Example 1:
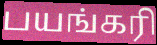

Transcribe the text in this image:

பயங்கரி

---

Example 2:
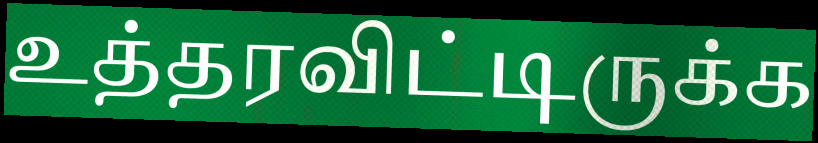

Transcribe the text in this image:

உத்தரவிட்டிருக்க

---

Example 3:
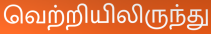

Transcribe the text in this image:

வெற்றியிலிருந்து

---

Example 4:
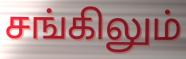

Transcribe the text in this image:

சங்கிலும்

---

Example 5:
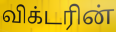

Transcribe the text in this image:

விக்டரின்